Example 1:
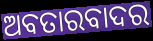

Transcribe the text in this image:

ଅବତାରବାଦର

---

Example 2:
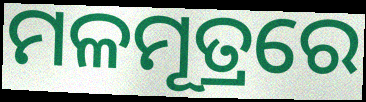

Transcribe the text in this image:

ମଳମୂତ୍ରରେ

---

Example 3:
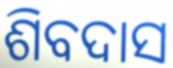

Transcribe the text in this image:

ଶିବଦାସ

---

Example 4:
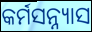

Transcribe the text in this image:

କର୍ମସନ୍ନ୍ୟାସ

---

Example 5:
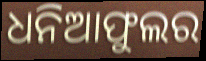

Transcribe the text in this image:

ଧନିଆଫୁଲର